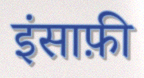
इंसाफ़ी